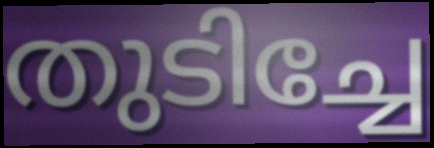
തുടിച്ചേ